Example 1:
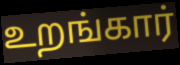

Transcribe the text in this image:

உறங்கார்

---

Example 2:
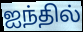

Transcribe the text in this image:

ஐந்தில்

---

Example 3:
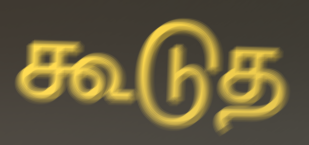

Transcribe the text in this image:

கூடுத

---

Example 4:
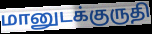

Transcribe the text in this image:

மானுடக்குருதி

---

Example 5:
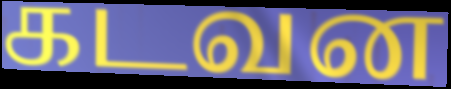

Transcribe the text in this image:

கடவன